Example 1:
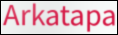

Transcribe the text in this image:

Arkatapa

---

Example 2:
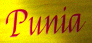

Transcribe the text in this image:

Punia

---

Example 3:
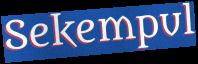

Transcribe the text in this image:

Sekempul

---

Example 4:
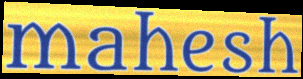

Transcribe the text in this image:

mahesh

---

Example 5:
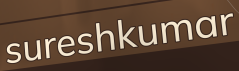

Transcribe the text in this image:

sureshkumar